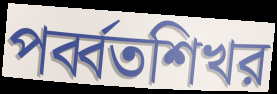
পর্ব্বতশিখর